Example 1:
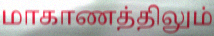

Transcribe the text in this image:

மாகாணத்திலும்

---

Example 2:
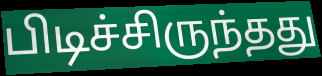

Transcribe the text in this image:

பிடிச்சிருந்தது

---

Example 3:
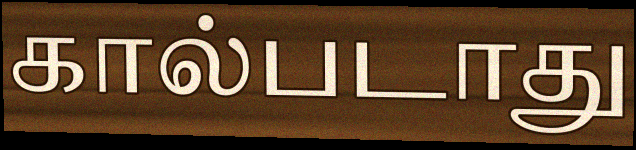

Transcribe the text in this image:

கால்படாது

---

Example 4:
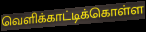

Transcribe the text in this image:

வெளிக்காட்டிக்கொள்ள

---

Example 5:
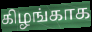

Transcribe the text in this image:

கிழங்காக